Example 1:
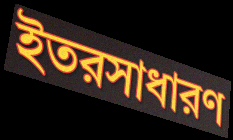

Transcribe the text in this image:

ইতরসাধারণ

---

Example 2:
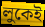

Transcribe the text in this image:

লুকেই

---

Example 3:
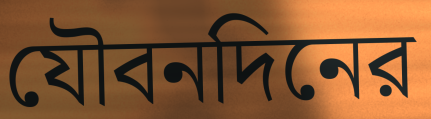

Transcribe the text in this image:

যৌবনদিনের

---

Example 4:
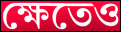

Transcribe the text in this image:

ক্ষেতেও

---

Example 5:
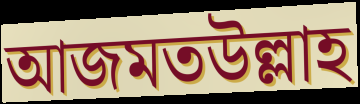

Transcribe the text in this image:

আজমতউল্লাহ